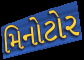
મિનોટોર